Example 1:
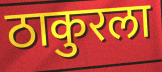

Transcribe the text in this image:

ठाकुरला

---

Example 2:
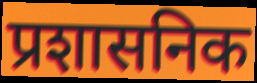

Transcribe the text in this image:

प्रशासनिक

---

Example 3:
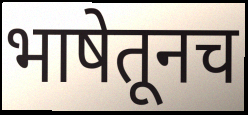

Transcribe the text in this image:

भाषेतूनच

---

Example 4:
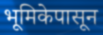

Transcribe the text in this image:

भूमिकेपासून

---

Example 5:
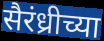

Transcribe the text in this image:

सैरंध्रीच्या